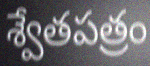
శ్వేతపత్రం